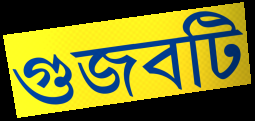
গুজবটি